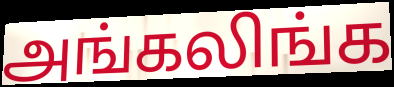
அங்கலிங்க